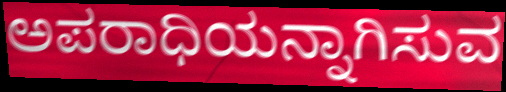
ಅಪರಾಧಿಯನ್ನಾಗಿಸುವ